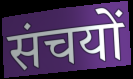
संचयों